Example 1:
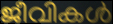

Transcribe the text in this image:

ജീവികൾ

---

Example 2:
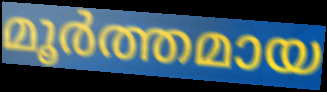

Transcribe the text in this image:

മൂർത്തമായ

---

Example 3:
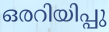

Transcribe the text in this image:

ഒരറിയിപ്പു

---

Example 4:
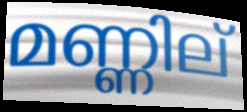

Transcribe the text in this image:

മണ്ണില്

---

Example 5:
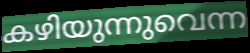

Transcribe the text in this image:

കഴിയുന്നുവെന്ന